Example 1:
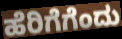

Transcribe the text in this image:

ಹೆರಿಗೆಗೆಂದು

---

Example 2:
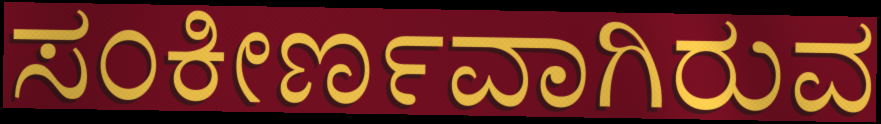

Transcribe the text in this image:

ಸಂಕೀರ್ಣವಾಗಿರುವ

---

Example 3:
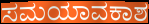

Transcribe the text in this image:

ಸಮಯಾವಕಾಶ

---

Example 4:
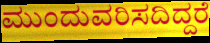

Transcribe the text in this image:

ಮುಂದುವರಿಸದಿದ್ದರೆ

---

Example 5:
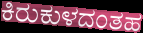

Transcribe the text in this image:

ಕಿರುಕುಳದಂತಹ